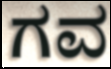
ಗವ